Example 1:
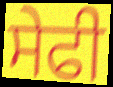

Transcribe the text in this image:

ਸੇਫੀ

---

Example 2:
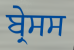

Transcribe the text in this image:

ਬ੍ਰੇਸਸ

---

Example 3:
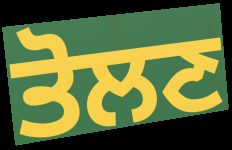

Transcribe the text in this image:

ਤੋਲਣ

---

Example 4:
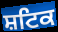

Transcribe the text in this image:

ਸ਼ਟਿਕ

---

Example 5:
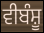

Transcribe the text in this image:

ਵੀਬੰਸ਼ੂ